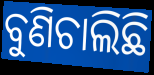
ବୁଣିଚାଲିଛି